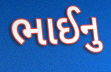
ભાઈનુ